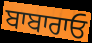
ਬਾਬਾਰਾਓ